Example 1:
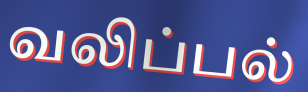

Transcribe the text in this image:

வலிப்பல்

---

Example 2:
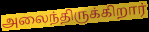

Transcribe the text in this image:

அலைந்திருக்கிறார்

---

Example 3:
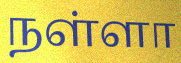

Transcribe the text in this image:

நள்ளா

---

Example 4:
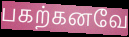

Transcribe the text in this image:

பகற்கனவே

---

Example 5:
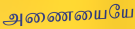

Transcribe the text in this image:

அணையையே